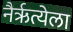
नैर्ऋत्येला